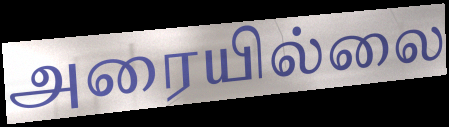
அரையில்லை